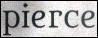
pierce